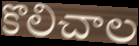
కొలిచాల